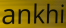
ankhi